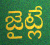
జైట్లే